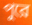
পুরে